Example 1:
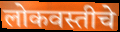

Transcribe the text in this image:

लोकवस्तीचे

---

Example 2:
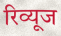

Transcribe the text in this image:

रिव्यूज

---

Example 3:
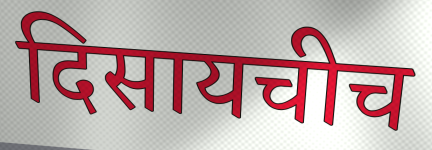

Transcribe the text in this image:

दिसायचीच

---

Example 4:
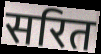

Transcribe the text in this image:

सरित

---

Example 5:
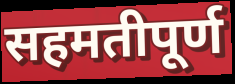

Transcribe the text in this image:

सहमतीपूर्ण